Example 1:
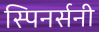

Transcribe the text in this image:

स्पिनर्सनी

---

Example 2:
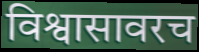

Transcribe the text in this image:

विश्वासावरच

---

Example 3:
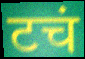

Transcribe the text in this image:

टचं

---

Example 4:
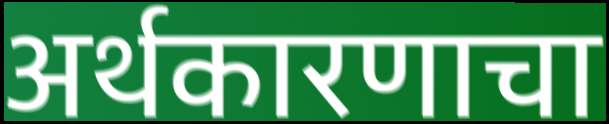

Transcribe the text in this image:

अर्थकारणाचा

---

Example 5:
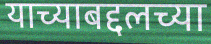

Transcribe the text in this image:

याच्याबद्दलच्या